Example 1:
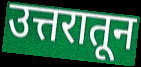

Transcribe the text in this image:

उत्तरातून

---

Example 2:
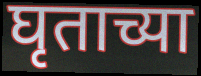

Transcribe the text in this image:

घृताच्या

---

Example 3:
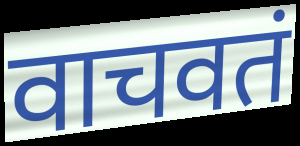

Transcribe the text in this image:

वाचवतं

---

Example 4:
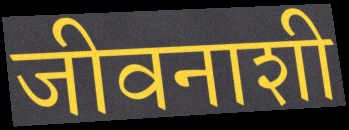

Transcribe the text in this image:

जीवनाशी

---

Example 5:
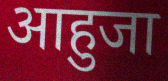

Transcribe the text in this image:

आहुजा